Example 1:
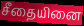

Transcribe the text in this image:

சீதையினை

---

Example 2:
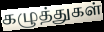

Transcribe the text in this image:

கழுத்துகள்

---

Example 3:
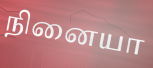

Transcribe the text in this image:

நினையா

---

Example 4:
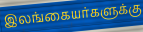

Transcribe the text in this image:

இலங்கையர்களுக்கு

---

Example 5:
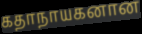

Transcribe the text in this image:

கதாநாயகனான